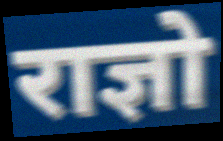
राज्ञो